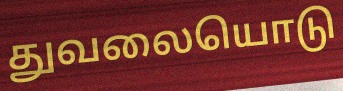
துவலையொடு